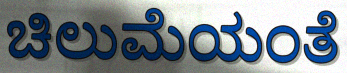
ಚಿಲುಮೆಯಂತೆ